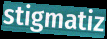
stigmatiz